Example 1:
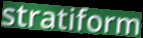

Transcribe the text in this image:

stratiform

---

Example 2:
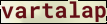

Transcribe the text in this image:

vartalap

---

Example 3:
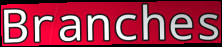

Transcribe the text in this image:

Branches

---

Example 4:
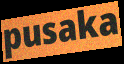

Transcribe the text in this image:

pusaka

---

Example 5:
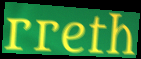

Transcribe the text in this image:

rreth